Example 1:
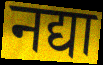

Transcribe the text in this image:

नद्या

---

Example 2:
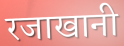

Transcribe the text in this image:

रजाखानी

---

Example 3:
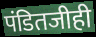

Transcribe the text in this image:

पंडितजीही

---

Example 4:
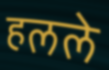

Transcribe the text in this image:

हलले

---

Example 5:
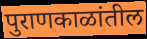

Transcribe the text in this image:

पुराणकाळांतील